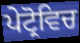
ਪੇਟ੍ਰੋਵਿਚ